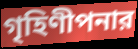
গৃহিণীপনার